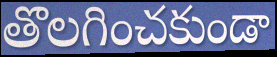
తొలగించకుండా